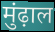
मुंढ़ाल